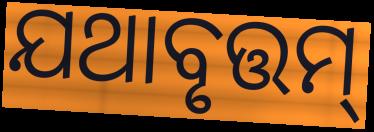
ଯଥାବୃତ୍ତମ୍